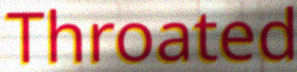
Throated